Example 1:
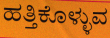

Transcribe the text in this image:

ಹತ್ತಿಕೊಳ್ಳುವ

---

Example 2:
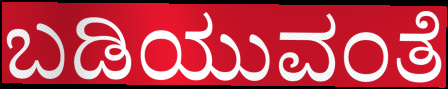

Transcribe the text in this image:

ಬಡಿಯುವಂತೆ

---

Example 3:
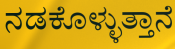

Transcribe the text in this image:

ನಡಕೊಳ್ಳುತ್ತಾನೆ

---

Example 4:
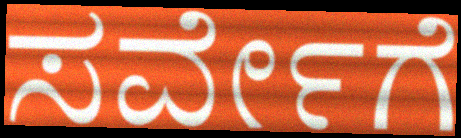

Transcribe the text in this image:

ಸರ್ವೇಗೆ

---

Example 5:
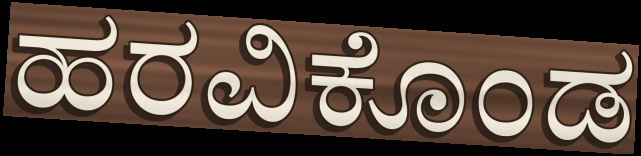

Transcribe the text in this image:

ಹರವಿಕೊಂಡ